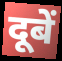
दूबें